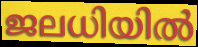
ജലധിയിൽ